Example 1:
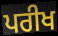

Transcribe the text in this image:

ਪਰੀਖ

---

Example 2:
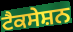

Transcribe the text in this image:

ਟੈਕਸੇਸ਼ਨ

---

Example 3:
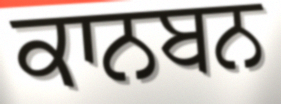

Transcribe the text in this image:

ਕਾਨਬਨ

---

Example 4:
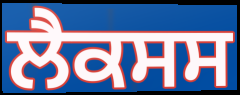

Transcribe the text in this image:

ਲੈਕਸਸ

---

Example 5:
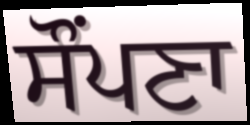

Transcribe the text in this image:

ਸੌਂਪਣਾ